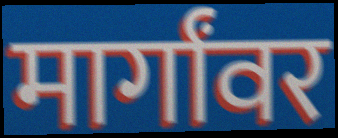
मार्गांवर